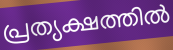
പ്രത്യക്ഷത്തിൽ